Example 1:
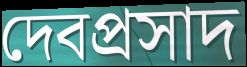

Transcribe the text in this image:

দেবপ্রসাদ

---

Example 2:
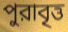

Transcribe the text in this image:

পুরাবৃত্ত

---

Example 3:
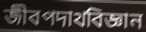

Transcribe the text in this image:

জীবপদার্থবিজ্ঞান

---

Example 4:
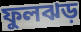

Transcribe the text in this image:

ফুলঝড়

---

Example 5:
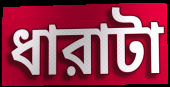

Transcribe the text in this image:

ধারাটা